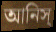
আনিস্